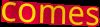
comes